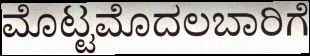
ಮೊಟ್ಟಮೊದಲಬಾರಿಗೆ